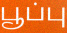
பூப்பு